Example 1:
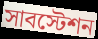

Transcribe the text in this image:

সাবস্টেশন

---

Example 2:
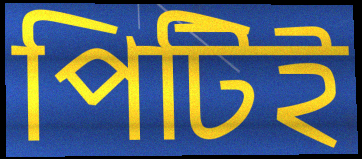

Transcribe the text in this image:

পিটিই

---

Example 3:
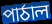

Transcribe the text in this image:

পাঠাল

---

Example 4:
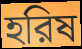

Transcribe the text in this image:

হরিষ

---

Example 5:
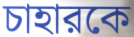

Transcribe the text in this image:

চাহারকে